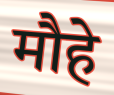
मौहे